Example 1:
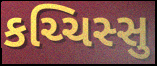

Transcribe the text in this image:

કચ્ચિસ્સુ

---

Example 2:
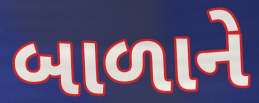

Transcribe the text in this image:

બાળાને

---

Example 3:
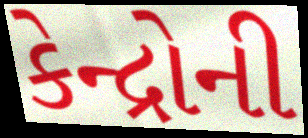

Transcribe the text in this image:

કેન્દ્રોની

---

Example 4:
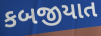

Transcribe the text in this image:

કબજીયાત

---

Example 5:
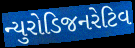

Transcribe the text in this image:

ન્યુરોડિજનરેટિવ